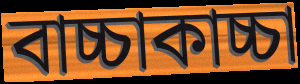
বাচ্চাকাচ্চা